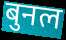
बुनल